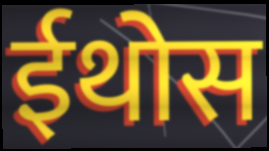
ईथोस